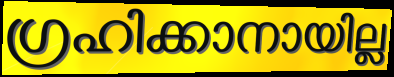
ഗ്രഹിക്കാനായില്ല